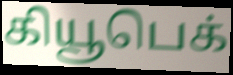
கியூபெக்